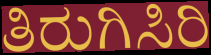
ತಿರುಗಿಸಿರಿ